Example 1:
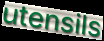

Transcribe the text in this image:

utensils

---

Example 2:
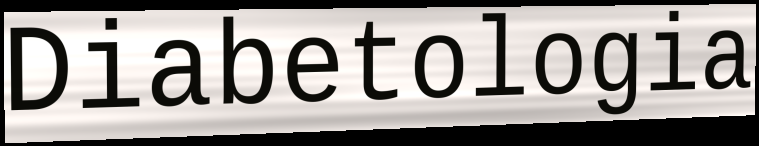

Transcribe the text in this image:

Diabetologia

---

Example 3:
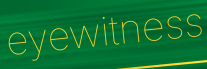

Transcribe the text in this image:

eyewitness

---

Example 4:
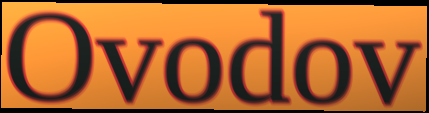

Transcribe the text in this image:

Ovodov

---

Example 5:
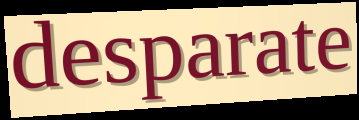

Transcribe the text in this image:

desparate